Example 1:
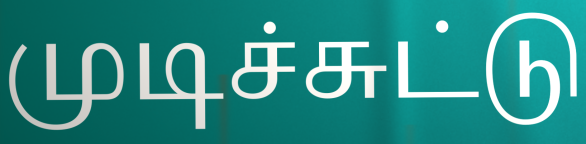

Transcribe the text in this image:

முடிச்சுட்டு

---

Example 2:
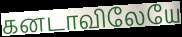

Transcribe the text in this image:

கனடாவிலேயே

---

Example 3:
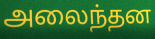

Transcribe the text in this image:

அலைந்தன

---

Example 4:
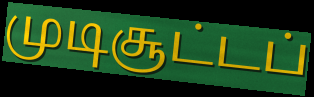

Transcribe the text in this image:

முடிசூட்டப்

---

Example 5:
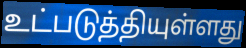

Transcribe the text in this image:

உட்படுத்தியுள்ளது